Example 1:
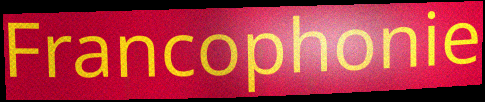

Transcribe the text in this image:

Francophonie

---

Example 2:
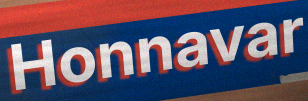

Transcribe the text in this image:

Honnavar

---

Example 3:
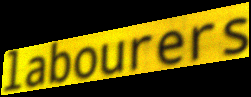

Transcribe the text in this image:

labourers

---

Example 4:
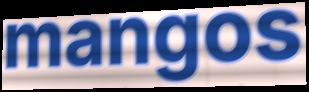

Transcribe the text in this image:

mangos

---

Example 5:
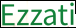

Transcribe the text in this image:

Ezzati